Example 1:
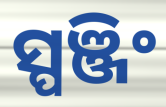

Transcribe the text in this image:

ସ୍ପଞ୍ଜିଂ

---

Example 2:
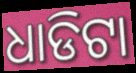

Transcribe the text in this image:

ଧାଡିଟା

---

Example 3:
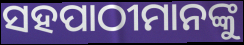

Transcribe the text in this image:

ସହପାଠୀମାନଙ୍କୁ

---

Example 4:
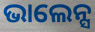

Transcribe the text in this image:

ଭାଲେନ୍ସ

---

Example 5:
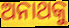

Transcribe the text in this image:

ଅନାଥକୁ